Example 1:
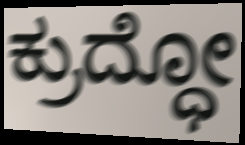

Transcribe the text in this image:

ಕ್ರುದ್ಧೋ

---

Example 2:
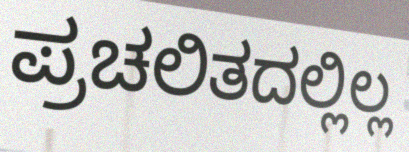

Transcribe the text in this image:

ಪ್ರಚಲಿತದಲ್ಲಿಲ್ಲ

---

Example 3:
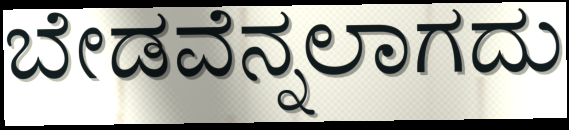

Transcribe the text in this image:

ಬೇಡವೆನ್ನಲಾಗದು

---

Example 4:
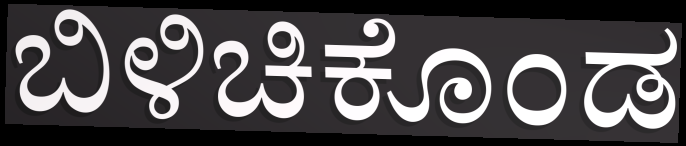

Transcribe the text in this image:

ಬಿಳಿಚಿಕೊಂಡ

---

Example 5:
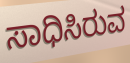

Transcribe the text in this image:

ಸಾಧಿಸಿರುವ